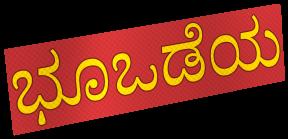
ಭೂಒಡೆಯ